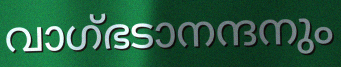
വാഗ്ഭടാനന്ദനും